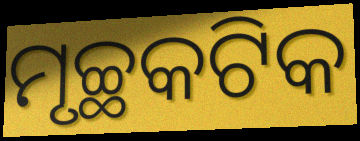
ମୃଚ୍ଛକଟିକ